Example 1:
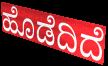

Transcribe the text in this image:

ಹೊಡೆದಿದೆ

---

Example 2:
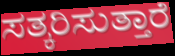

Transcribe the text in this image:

ಸತ್ಕರಿಸುತ್ತಾರೆ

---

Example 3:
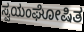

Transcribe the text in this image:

ಸ್ವಯಂಘೋಷಿತ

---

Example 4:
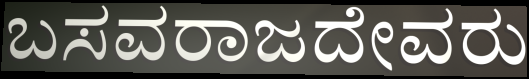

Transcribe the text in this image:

ಬಸವರಾಜದೇವರು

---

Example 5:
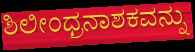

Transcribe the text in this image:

ಶಿಲೀಂಧ್ರನಾಶಕವನ್ನು